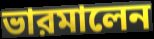
ভারমালেন